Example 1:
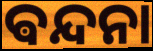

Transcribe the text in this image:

ଵନ୍ଦନା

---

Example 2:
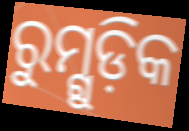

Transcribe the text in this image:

ରୁମ୍ଗୁଡ଼ିକ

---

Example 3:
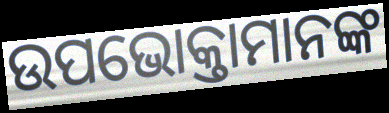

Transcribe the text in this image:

ଉପଭୋକ୍ତାମାନଙ୍କ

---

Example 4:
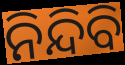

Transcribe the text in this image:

ନିନ୍ଦିବି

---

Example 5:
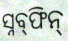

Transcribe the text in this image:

ସ୍ନବ୍‍ଫିନ୍